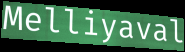
Melliyaval